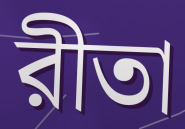
রীতা